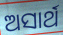
ଅସାର୍ଥ